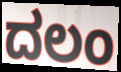
ದಲಂ